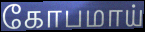
கோபமாய்